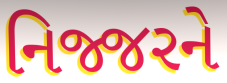
નિજ્જરને